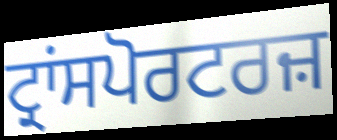
ਟ੍ਰਾਂਸਪੋਰਟਰਜ਼